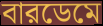
বারডেমে